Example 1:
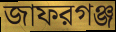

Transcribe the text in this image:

জাফরগঞ্জ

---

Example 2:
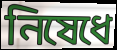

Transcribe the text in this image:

নিষেধে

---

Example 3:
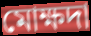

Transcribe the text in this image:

মোক্ষদা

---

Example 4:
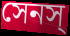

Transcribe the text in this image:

সেনস্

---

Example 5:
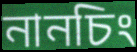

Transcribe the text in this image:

নানচিং